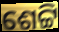
ଶେଟ୍ଟି